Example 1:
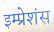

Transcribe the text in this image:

इम्प्रेशंस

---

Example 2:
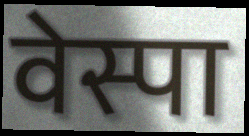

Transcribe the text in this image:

वेस्‍पा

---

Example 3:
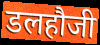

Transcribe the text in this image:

डलहौजी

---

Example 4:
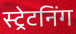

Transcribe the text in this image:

स्ट्रेटनिंग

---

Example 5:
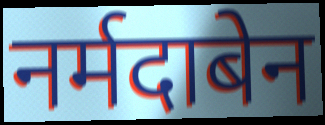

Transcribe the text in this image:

नर्मदाबेन